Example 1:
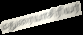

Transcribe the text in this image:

மதுரையாசிரியர்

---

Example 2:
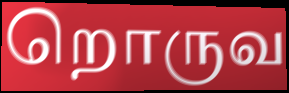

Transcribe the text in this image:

றொருவ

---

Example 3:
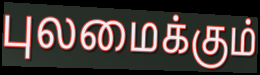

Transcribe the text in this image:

புலமைக்கும்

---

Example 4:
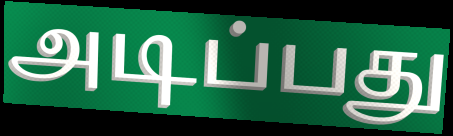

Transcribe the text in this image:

அடிப்பது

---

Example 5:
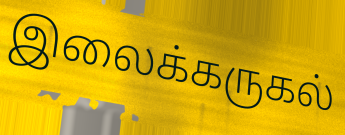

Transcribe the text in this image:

இலைக்கருகல்